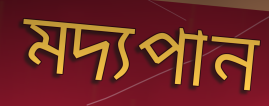
মদ্যপান